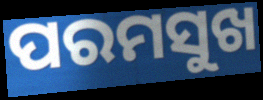
ପରମସୁଖ